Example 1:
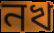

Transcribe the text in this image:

নখ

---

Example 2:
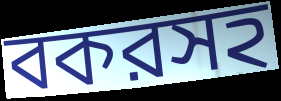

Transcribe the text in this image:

বকরসহ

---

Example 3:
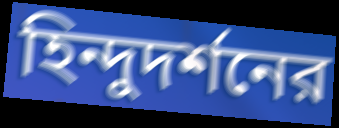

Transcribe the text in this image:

হিন্দুদর্শনের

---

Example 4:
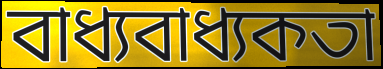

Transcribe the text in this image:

বাধ্যবাধ্যকতা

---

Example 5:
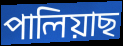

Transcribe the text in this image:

পালিয়াছ